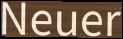
Neuer